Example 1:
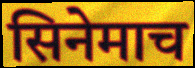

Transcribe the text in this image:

सिनेमाच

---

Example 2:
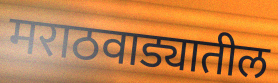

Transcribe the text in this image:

मराठवाड्यातील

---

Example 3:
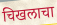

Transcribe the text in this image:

चिखलाचा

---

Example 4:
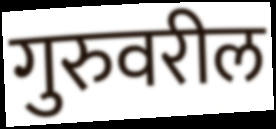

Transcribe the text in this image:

गुरुवरील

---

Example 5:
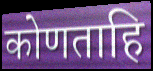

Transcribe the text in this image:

कोणताहि